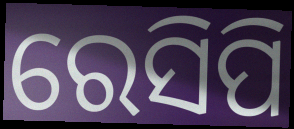
ରେସିପି